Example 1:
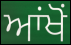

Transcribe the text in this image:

ਆਂਖੋਂ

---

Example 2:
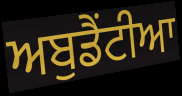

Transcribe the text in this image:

ਅਬੁਡੈਂਟੀਆ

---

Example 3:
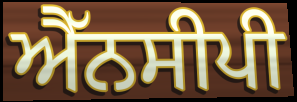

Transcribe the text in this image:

ਐੱਨਸੀਪੀ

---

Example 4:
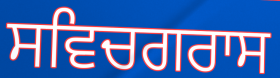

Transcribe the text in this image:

ਸਵਿਚਗਰਾਸ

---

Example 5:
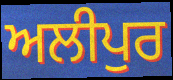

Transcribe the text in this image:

ਅਲੀਪੁਰ